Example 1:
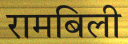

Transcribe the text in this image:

रामबिली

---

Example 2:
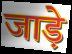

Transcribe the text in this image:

जाड़े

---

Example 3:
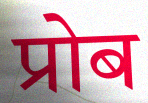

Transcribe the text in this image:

प्रोब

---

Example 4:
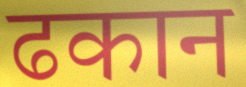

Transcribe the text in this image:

ढकान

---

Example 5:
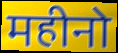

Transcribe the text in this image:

महीनो